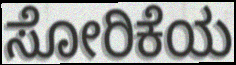
ಸೋರಿಕೆಯ